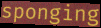
sponging